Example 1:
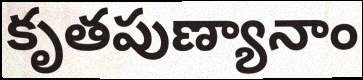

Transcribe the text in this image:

కృతపుణ్యానాం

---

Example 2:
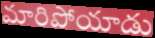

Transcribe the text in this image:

మారిపోయాడు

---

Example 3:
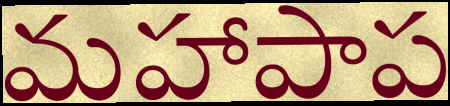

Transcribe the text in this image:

మహాపాప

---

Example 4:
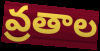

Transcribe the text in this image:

వ్రతాల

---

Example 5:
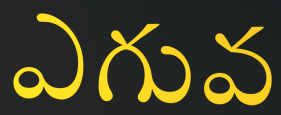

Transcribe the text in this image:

ఎగువ